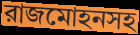
রাজমোহনসহ